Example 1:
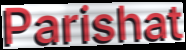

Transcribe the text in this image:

Parishat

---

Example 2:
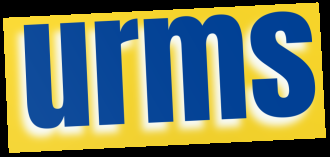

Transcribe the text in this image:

urms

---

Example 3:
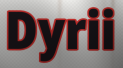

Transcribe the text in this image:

Dyrii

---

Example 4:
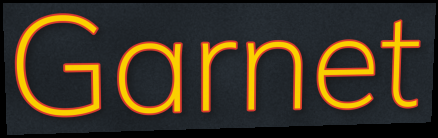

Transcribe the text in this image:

Garnet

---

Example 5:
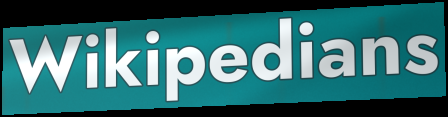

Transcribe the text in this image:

Wikipedians